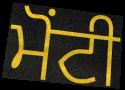
ਮੋਂਟੀ